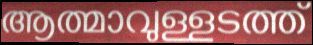
ആത്മാവുള്ളടത്ത്